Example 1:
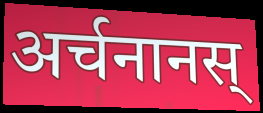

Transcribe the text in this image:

अर्चनानस्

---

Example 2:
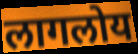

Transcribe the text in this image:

लागलोय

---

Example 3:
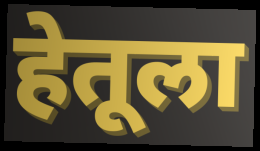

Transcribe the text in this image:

हेतूला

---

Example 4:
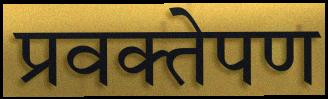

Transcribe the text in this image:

प्रवक्तेपण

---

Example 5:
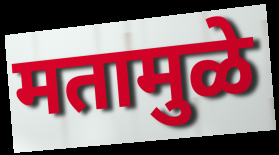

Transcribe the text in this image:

मतामुळे